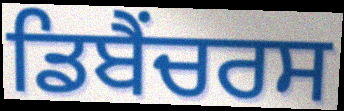
ਡਿਬੈਂਚਰਸ